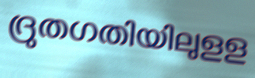
ദ്രുതഗതിയിലുളള